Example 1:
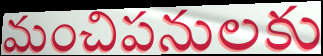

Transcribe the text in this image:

మంచిపనులకు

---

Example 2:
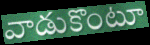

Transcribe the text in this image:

వాడుకొంటూ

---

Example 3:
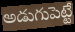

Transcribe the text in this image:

అడుగుపెట్టే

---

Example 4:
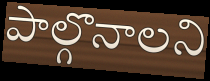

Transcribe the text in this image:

పాల్గొనాలని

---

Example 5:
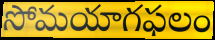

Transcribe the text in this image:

సోమయాగఫలం